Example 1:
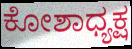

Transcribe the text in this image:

ಕೋಶಾಧ್ಯಕ್ಷ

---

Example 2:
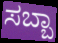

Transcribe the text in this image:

ಸಬ್ಬಾ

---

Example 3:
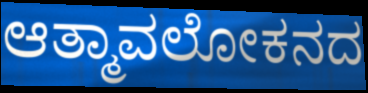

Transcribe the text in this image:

ಆತ್ಮಾವಲೋಕನದ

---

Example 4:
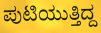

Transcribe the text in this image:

ಪುಟಿಯುತ್ತಿದ್ದ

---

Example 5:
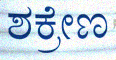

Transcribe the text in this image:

ಶಕ್ರೇಣ